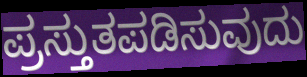
ಪ್ರಸ್ತುತಪಡಿಸುವುದು